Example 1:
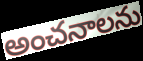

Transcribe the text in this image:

అంచనాలను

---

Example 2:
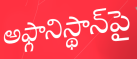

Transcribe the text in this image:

అఫ్గానిస్థాన్‌పై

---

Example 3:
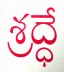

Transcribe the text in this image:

శ్రద్ధే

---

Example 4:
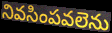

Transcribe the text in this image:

నివసింపవలెను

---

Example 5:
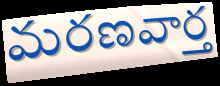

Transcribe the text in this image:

మరణవార్త